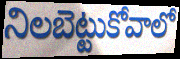
నిలబెట్టుకోవాలో